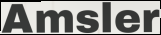
Amsler